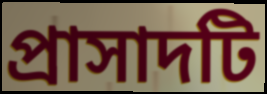
প্রাসাদটি